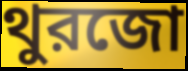
থুরজো